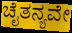
ಚೈತನ್ಯವೇ